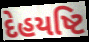
દેહયષ્ટિ